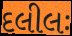
દલીલઃ